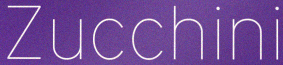
Zucchini